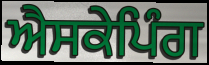
ਐਸਕੇਪਿੰਗ